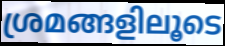
ശ്രമങ്ങളിലൂടെ